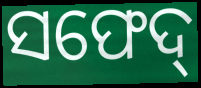
ସଫେଦ୍